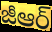
జీఆర్